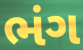
ભંગ